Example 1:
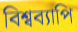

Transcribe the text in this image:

বিশ্বব্যাপি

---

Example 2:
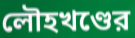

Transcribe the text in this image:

লৌহখণ্ডের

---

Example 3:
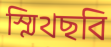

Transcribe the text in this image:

স্মিথছবি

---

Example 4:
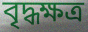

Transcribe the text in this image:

বৃদ্ধক্ষত্র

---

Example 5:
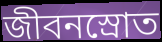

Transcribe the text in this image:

জীবনস্রোত